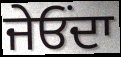
ਜੇਓੰਦਾ